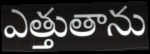
ఎత్తుతాను